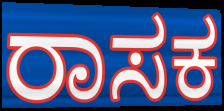
ರಾಸಕ